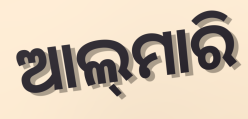
ଆଲ୍‌ମାରି